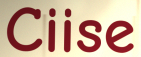
Ciise